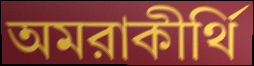
অমরাকীর্থি